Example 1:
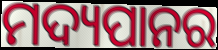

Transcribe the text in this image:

ମଦ୍ୟପାନର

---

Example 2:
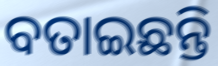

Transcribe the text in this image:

ବତାଇଛନ୍ତି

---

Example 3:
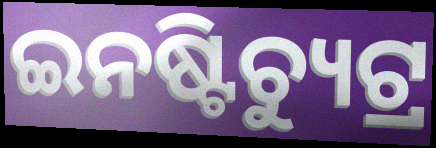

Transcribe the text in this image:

ଇନଷ୍ଟିଚ୍ୟୁଟ୍ର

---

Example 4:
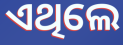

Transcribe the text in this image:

ଏଥିଲେ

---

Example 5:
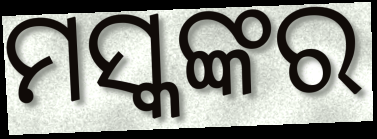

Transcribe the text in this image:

ମସ୍କଙ୍କର